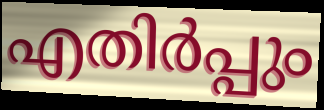
എതിർപ്പും